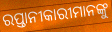
ରପ୍ତାନୀକାରୀମାନଙ୍କୁ